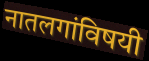
नातलगांविषयी